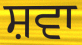
ਸ਼ਵਾ